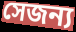
সেজন্য